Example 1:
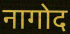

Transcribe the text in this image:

नागोद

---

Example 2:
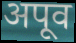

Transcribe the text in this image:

अपूव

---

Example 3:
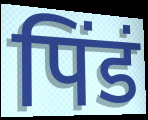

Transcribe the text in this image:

पिंडं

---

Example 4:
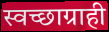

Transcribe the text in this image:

स्वच्छाग्राही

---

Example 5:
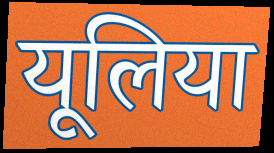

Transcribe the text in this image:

यूलिया